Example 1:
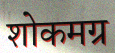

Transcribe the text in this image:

शोकमग्र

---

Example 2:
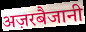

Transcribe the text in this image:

अज़रबैजानी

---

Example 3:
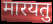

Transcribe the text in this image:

मारयतु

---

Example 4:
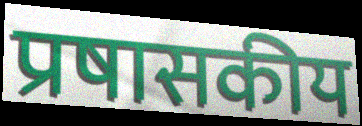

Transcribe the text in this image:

प्रषासकीय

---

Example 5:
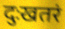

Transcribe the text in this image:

दुःखतरं